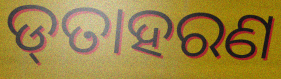
ଡ୍‌ତାହରଣ